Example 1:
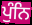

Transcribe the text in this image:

ਪੁੰਨਿ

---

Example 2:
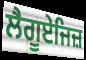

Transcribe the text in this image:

ਲੈਗੂਏਜਿਜ਼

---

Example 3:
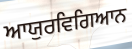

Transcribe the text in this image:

ਆਯੁਰਵਿਗਿਆਨ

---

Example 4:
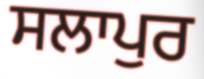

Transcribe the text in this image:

ਸਲਾਪੁਰ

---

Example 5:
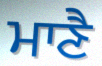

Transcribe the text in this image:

ਮਾਣੈ